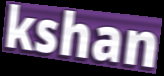
kshan